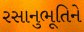
રસાનુભૂતિને